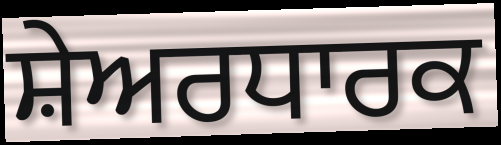
ਸ਼ੇਅਰਧਾਰਕ